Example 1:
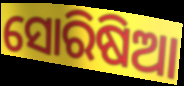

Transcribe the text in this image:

ସୋରିଷିଆ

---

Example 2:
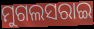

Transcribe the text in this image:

ମୁଗଲସରାଇ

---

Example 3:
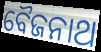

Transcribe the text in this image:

ବୈଜନାଥ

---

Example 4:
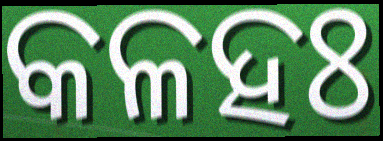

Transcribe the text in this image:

କଳହଃ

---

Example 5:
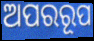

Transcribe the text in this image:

ଅପରରୂପ